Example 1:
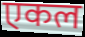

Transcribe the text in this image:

एकल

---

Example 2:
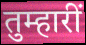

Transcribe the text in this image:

तुम्हारीं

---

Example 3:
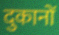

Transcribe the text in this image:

दुकानों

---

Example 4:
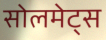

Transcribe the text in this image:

सोलमेट्स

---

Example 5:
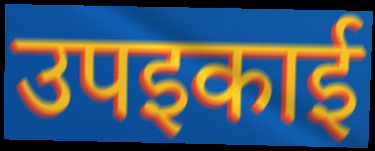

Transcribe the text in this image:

उपइकाई